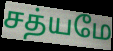
சத்யமே